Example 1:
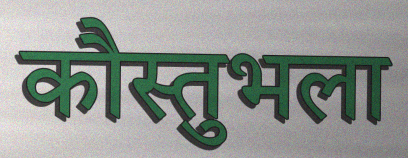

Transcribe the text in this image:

कौस्तुभला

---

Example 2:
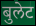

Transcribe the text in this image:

बुलेट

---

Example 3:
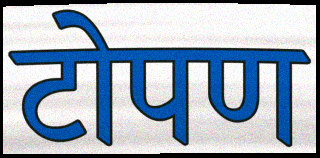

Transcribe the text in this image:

टोपण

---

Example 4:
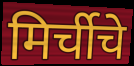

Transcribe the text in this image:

मिर्चीचे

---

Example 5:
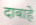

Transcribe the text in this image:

दाबाहे